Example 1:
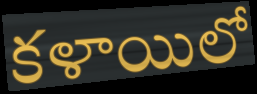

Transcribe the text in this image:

కళాయిలో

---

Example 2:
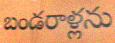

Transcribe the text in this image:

బండరాళ్లను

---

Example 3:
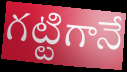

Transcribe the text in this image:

గట్టిగానే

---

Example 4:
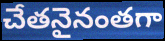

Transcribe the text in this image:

చేతనైనంతగా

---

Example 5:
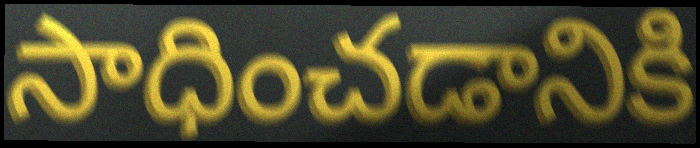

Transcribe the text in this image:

సాధించడానికి